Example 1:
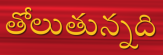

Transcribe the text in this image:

తోలుతున్నది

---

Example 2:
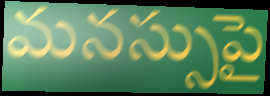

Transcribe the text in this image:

మనస్సుపై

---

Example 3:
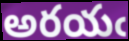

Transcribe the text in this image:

అరయఁ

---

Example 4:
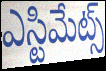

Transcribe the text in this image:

ఎస్టిమేట్స్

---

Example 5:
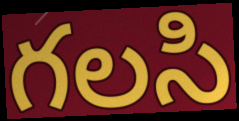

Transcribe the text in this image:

గలసి